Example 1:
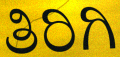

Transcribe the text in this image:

ತಿರಿಗಿ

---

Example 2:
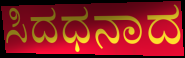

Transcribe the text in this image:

ಸಿದಧನಾದ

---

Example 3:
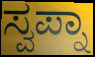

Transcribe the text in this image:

ಸ್ವಪ್ನಾ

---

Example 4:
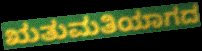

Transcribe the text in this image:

ಋತುಮತಿಯಾಗದ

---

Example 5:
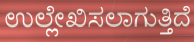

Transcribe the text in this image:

ಉಲ್ಲೇಖಿಸಲಾಗುತ್ತಿದೆ